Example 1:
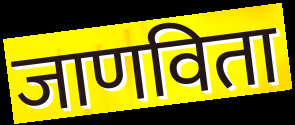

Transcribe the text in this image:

जाणविता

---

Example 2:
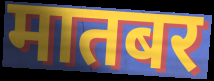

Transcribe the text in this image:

मातबर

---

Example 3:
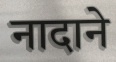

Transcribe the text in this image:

नादाने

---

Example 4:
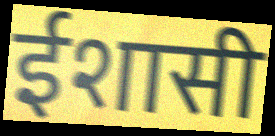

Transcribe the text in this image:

ईशासी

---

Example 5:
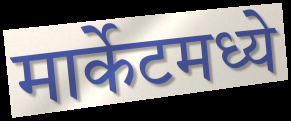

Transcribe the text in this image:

मार्केटमध्ये